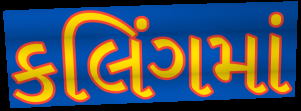
કલિંગમાં